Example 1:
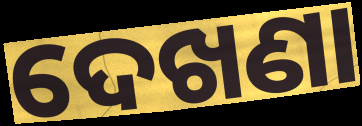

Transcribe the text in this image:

ଦେଖଣା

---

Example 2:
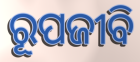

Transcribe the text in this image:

ରୂପଜୀବି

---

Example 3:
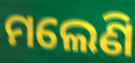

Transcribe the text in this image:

ମଲେଣି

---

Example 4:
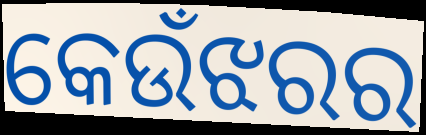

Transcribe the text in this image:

କେଉଁଝରର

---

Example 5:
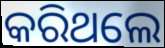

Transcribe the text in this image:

କରିଥଲେ